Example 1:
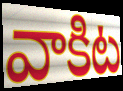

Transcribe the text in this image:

వాకిట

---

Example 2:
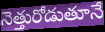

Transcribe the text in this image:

నెత్తురోడుతూనే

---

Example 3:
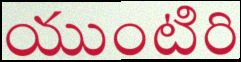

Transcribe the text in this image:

యుంటిరి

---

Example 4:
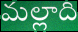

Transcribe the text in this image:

మల్లాది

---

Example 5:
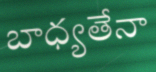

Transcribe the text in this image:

బాధ్యతేనా